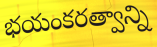
భయంకరత్వాన్ని